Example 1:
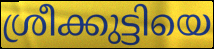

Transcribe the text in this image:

ശ്രീക്കുട്ടിയെ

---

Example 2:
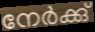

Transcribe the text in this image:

നേർക്കു്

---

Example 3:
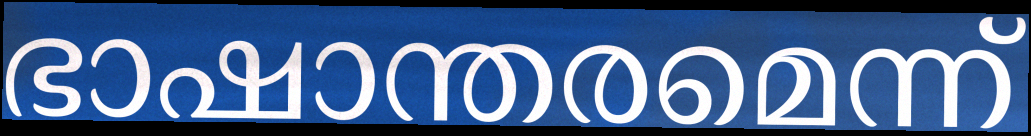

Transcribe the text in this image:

ഭാഷാന്തരമെന്ന്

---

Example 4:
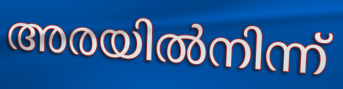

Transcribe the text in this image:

അരയിൽനിന്ന്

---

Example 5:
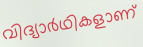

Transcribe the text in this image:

വിദ്യാർഥികളാണ്